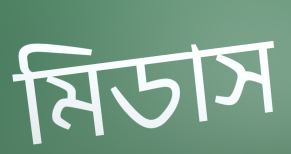
মিডাস